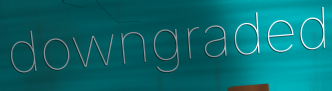
downgraded